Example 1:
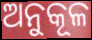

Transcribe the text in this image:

ଅନୁକୂଳ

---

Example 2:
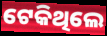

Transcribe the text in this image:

ଟେକିଥିଲେ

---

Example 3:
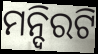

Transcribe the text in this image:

ମନ୍ଦିରଟି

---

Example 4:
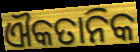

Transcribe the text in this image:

ଐକତାନିକ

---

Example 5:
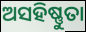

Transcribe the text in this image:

ଅସହିଷ୍ଣୁତା